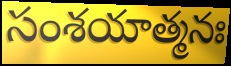
సంశయాత్మనః